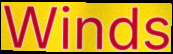
Winds